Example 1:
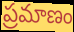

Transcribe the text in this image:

ప్రమాణం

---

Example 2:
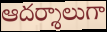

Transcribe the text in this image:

ఆదర్శాలుగా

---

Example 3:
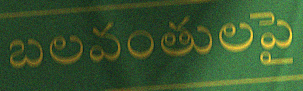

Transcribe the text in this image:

బలవంతులపై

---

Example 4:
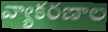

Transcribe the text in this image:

వ్యాకరణాల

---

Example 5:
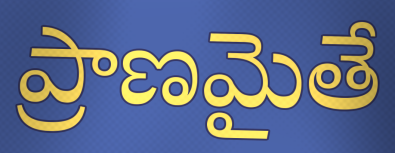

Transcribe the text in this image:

ప్రాణమైతే